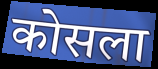
कोसला